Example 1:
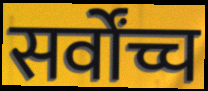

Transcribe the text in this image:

सर्वोंच्च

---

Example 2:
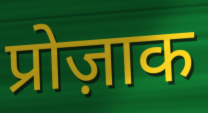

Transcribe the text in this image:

प्रोज़ाक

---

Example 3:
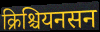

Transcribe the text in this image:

क्रिश्चियनसन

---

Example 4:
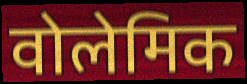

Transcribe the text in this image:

वोलेमिक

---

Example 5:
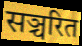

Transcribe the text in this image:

सञ्चरित